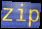
zip